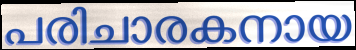
പരിചാരകനായ